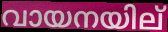
വായനയില്